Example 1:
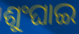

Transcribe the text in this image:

ଶୁଂଘାଇ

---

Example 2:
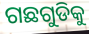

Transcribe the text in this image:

ଗଛଗୁଡିକୁ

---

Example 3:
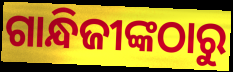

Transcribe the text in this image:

ଗାନ୍ଧିଜୀଙ୍କଠାରୁ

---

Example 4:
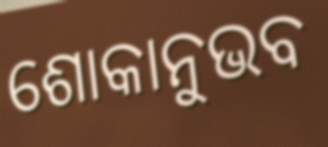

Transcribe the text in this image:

ଶୋକାନୁଭବ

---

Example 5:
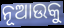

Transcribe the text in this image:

ନୂଆଉକୁ